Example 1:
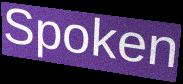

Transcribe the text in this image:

Spoken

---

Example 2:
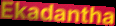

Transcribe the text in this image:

Ekadantha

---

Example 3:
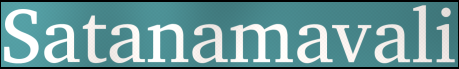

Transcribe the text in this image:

Satanamavali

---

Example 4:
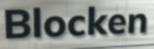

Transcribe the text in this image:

Blocken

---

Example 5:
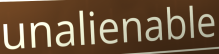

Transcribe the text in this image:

unalienable